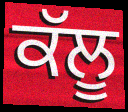
ਕੱਲੂ